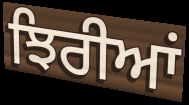
ਝਿਰੀਆਂ